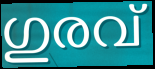
ഗുരവ്